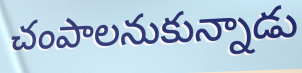
చంపాలనుకున్నాడు